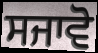
ਸਜਾਵੋ